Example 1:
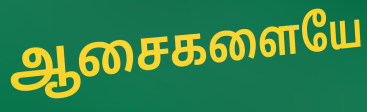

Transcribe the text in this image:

ஆசைகளையே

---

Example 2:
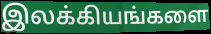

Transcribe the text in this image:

இலக்கியங்களை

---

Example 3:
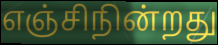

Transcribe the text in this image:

எஞ்சிநின்றது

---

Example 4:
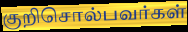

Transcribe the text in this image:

குறிசொல்பவர்கள்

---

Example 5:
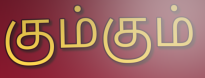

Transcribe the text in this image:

கும்கும்